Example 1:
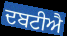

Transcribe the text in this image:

ਦਬਟੀਐ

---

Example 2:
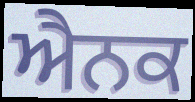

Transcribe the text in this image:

ਐਨਕ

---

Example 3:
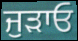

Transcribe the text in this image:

ਜੁੜਾਓ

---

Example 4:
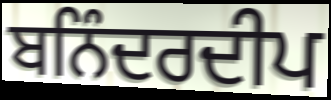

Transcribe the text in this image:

ਬਨਿੰਦਰਦੀਪ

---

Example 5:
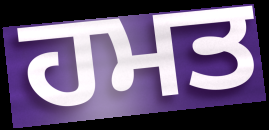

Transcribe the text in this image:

ਹਮਤ